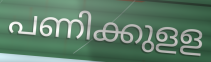
പണിക്കുളള